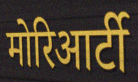
मोरिआर्टी